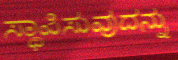
ಸ್ಥಾಪಿಸುವುದನ್ನು